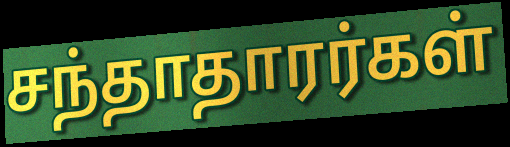
சந்தாதாரர்கள்